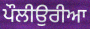
ਪੌਲੀਉਰੀਆ